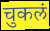
चुकलं